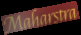
Maharstra